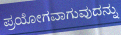
ಪ್ರಯೋಗವಾಗುವುದನ್ನು